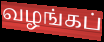
வழங்கப்